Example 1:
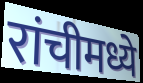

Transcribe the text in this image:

रांचीमध्ये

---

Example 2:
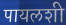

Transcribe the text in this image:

पायलशी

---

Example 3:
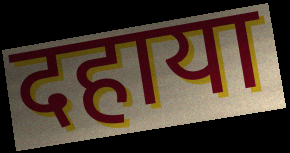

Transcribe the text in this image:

दहाया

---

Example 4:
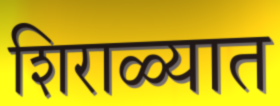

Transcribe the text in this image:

शिराळ्यात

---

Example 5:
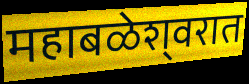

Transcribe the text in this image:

महाबळेश्वरात